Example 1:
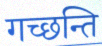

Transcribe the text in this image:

गच्छन्ति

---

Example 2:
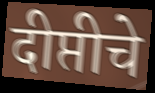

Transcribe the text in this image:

दीप्तीचे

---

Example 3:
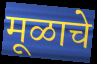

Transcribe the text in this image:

मूळाचे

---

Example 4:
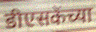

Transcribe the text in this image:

डीएसकेंच्या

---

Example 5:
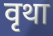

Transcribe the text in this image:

वृथा